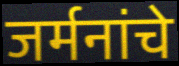
जर्मनांचे